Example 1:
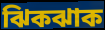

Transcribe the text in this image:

ঝিকঝাক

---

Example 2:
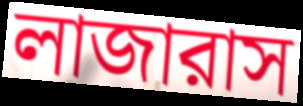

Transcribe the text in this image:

লাজারাস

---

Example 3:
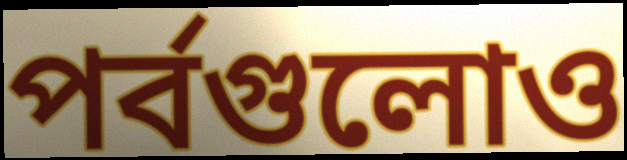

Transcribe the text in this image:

পর্বগুলোও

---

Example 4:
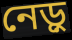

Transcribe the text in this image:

নেড়ু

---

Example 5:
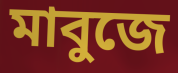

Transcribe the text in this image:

মাবুজে